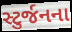
સ્ટુર્જનના